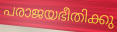
പരാജയഭീതിക്കു